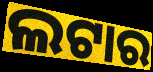
ଲଟାର